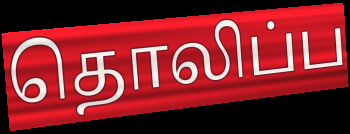
தொலிப்ப